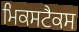
ਮਿਕਸਟੈਕਸ